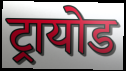
ट्रायोड